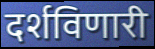
दर्शविणारी